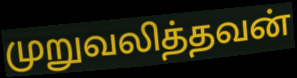
முறுவலித்தவன்